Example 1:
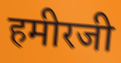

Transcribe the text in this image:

हमीरजी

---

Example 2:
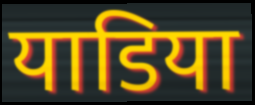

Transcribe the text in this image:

याडिया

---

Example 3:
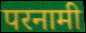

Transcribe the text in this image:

परनामी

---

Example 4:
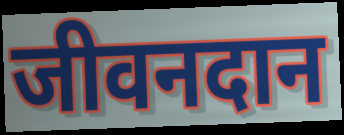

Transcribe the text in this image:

जीवनदान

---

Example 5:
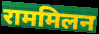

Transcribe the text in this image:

राममिलन